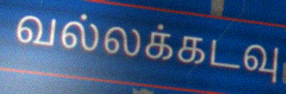
வல்லக்கடவு